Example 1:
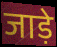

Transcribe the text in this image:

जाड़े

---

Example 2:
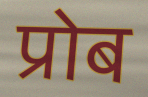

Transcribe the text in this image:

प्रोब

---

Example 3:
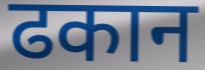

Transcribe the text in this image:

ढकान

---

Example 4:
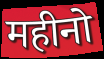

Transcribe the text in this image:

महीनो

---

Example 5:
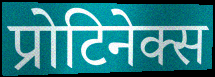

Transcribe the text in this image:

प्रोटिनेक्स